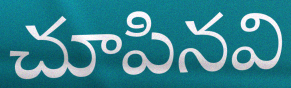
చూపినవి